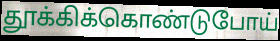
தூக்கிக்கொண்டுபோய்